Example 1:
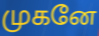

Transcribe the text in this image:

முகனே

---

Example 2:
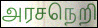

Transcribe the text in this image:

அரசநெறி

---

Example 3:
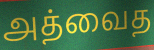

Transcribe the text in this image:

அத்வைத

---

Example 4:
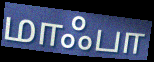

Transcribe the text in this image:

மாஃபா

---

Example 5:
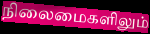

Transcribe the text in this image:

நிலைமைகளிலும்